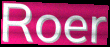
Roer